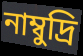
নাম্বুদ্রি